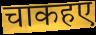
चाकहए